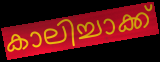
കാലിച്ചാക്ക്